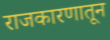
राजकारणातून